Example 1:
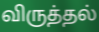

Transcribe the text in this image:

விருத்தல்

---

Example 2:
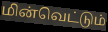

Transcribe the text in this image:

மின்வெட்டும்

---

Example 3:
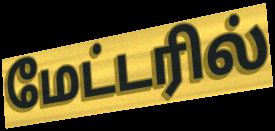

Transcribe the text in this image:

மேட்டரில்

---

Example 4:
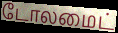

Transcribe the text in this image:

டோலமைட்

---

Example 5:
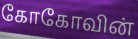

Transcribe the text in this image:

கோகோவின்